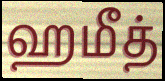
ஹமீத்